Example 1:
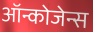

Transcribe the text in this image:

ऑन्कोजेन्स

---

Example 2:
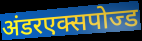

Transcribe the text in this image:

अंडरएक्सपोज्ड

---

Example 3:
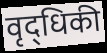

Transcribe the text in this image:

वृद्धिकी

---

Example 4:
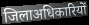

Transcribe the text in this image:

जिलाअधिकारियों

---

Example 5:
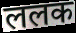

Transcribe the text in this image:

ललक